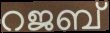
റജബ്